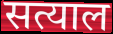
सत्याल